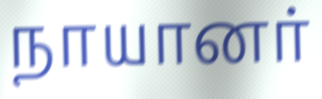
நாயானர்